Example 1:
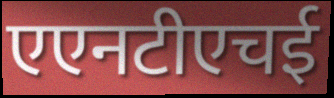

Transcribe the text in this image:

एएनटीएचई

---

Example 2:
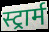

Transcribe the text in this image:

स्ट्रार्म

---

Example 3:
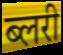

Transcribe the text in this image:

ब्लरी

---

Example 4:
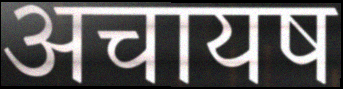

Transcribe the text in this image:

अचायष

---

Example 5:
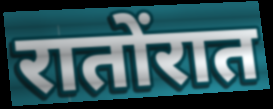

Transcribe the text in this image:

रातोंरात